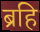
ब्रहि